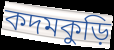
কদমকুড়ি